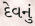
દેવનું